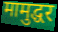
मामुद्धर